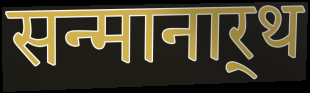
सन्मानार्थ